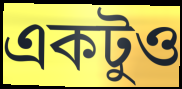
একটুও